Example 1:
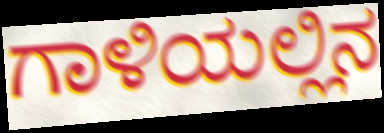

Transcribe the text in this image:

ಗಾಳಿಯಲ್ಲಿನ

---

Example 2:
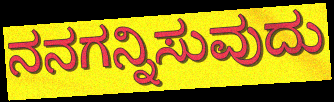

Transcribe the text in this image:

ನನಗನ್ನಿಸುವುದು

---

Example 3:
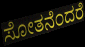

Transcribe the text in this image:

ಸೋತನೆಂದರೆ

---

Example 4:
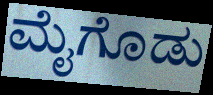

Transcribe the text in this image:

ಮೈಗೊಡು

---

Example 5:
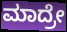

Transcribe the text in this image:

ಮಾದ್ರೇ